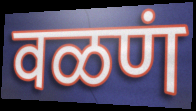
वळणं